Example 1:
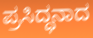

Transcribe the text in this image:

ಪ್ರಸಿದ್ಧನಾದ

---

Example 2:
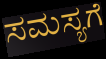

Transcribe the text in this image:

ಸಮಸ್ಯಗೆ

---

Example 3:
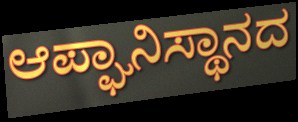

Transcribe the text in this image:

ಆಪ್ಘಾನಿಸ್ಥಾನದ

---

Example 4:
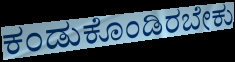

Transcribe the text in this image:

ಕಂಡುಕೊಂಡಿರಬೇಕು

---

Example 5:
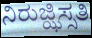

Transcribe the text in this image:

ನಿರುಜ್ಝಿಸ್ಸತಿ